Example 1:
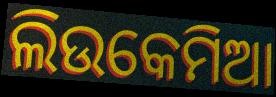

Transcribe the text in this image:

ଲିଉକେମିଆ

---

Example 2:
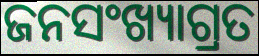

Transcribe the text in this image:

ଜନସଂଖ୍ୟାଗ୍ରତ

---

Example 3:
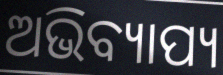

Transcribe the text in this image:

ଅଭିବ୍ୟାପ୍ୟ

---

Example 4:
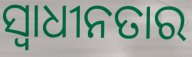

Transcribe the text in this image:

ସ୍ବାଧୀନତାର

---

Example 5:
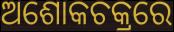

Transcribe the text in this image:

ଅଶୋକଚକ୍ରରେ